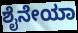
ಶೈನೇಯಾ